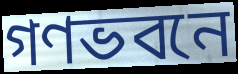
গণভবনে